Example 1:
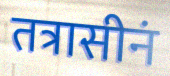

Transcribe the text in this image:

तत्रासीनं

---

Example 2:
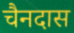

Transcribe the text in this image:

चैनदास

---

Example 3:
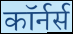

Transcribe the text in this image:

कॉर्नर्स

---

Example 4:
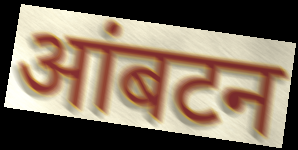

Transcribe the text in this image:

आंबटन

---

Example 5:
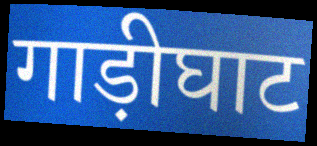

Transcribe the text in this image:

गाड़ीघाट